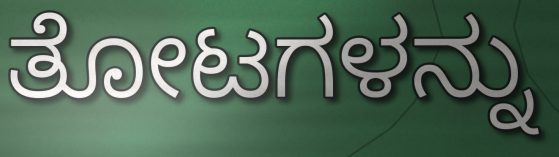
ತೋಟಗಳನ್ನು